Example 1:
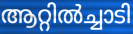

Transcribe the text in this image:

ആറ്റിൽച്ചാടി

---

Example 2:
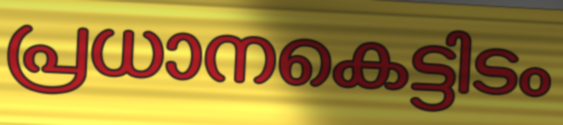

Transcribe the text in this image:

പ്രധാനകെട്ടിടം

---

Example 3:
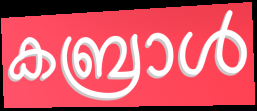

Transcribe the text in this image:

കബ്രാൾ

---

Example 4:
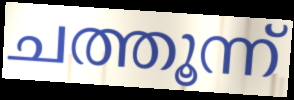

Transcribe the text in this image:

ചത്തൂന്ന്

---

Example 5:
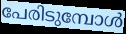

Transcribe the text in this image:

പേരിടുമ്പോൾ